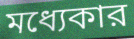
মধ্যেকার